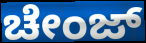
ಚೇಂಜ್